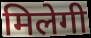
मिलेगी